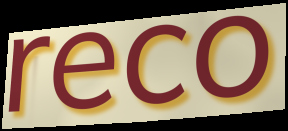
reco